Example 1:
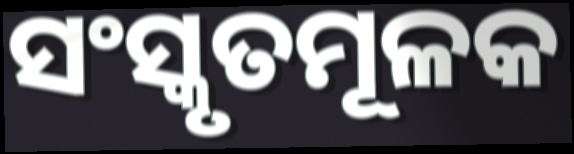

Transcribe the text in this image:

ସଂସ୍କୃତମୂଳକ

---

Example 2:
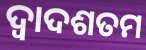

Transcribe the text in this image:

ଦ୍ୱାଦଶତମ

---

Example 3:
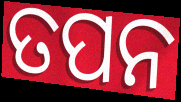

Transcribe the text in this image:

ତପନ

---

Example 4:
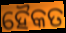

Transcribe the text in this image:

ହୈକତ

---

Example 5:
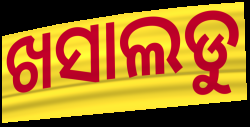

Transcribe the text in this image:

ଖସାଲଡୁ